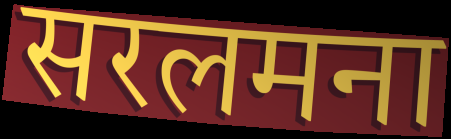
सरलमना